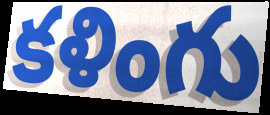
కళింగు